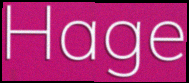
Hage